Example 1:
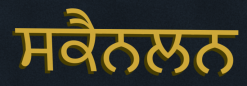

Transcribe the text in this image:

ਸਕੈਨਲਨ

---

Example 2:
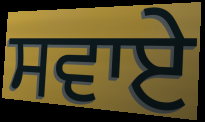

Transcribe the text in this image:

ਸਵਾਏ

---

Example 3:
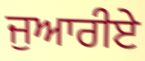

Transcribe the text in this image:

ਜੁਆਰੀਏ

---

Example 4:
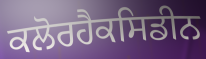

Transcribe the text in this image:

ਕਲੋਰਹੈਕਸਿਡੀਨ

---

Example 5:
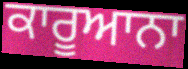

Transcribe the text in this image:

ਕਾਰੂਆਨਾ